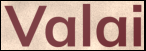
Valai